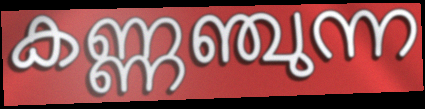
കണ്ണഞ്ചുന്ന